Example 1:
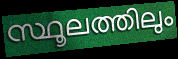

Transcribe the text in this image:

സ്ഥൂലത്തിലും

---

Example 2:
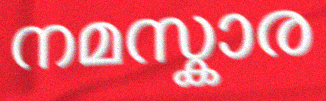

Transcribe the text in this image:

നമസ്കാര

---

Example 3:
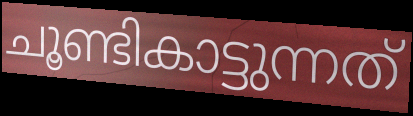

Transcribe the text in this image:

ചൂണ്ടികാട്ടുന്നത്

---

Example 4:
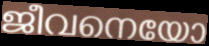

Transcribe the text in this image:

ജീവനെയോ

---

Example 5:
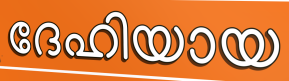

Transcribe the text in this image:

ദേഹിയായ